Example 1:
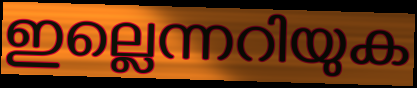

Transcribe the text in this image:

ഇല്ലെന്നറിയുക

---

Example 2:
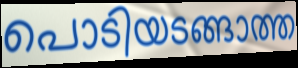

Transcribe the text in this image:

പൊടിയടങ്ങാത്ത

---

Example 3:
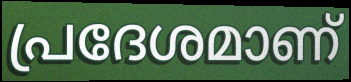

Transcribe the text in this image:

പ്രദേശമാണ്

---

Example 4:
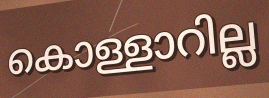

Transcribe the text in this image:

കൊള്ളാറില്ല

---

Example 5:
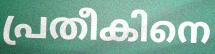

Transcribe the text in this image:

പ്രതീകിനെ